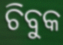
ଚିବୁକ